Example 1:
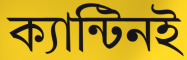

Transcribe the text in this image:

ক্যান্টিনই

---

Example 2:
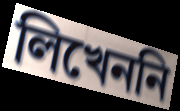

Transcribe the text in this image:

লিখেননি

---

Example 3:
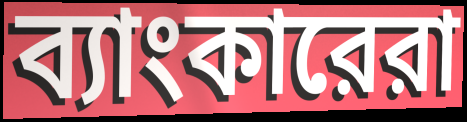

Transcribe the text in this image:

ব্যাংকারেরা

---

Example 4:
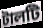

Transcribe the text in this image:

টালটি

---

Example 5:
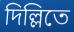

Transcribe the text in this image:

দিল্লিতে